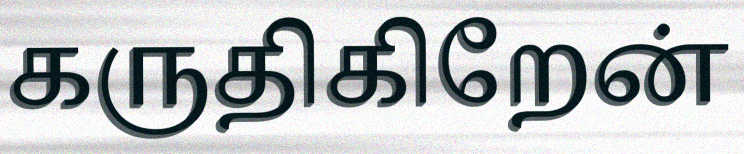
கருதிகிறேன்